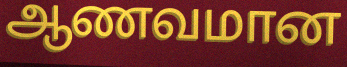
ஆணவமான